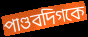
পাণ্ডবদিগকে